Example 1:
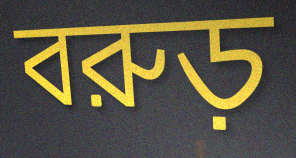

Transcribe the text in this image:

বরুড়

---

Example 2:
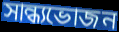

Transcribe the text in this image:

সান্ধ্যভোজন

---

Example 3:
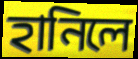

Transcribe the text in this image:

হানিলে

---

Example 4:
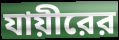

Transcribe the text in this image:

যায়ীরের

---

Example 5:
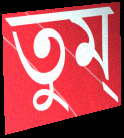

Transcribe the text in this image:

তুম্